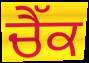
ਚੈੱਕ